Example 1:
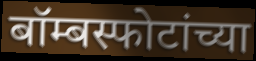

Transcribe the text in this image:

बॉम्बस्फोटांच्या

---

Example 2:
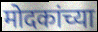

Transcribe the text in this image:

मोदकांच्या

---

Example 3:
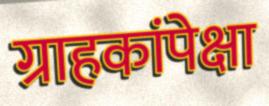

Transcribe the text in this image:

ग्राहकांपेक्षा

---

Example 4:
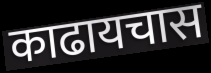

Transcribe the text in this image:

काढायचास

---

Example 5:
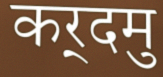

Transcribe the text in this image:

कर्दमु